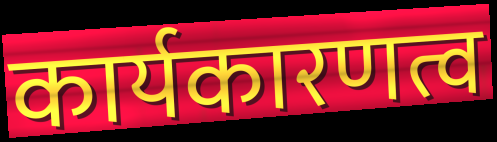
कार्यकारणत्व